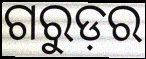
ଗରୁଡ଼ର